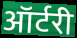
ऑर्टरी